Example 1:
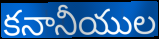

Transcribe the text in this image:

కనానీయుల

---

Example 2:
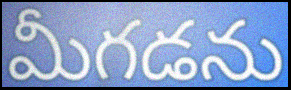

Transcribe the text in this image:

మీగడను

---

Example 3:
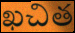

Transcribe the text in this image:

ఖచిత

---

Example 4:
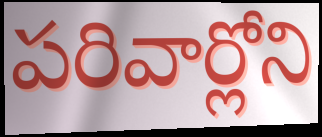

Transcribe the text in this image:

పరివార్లోని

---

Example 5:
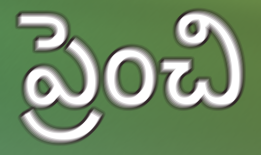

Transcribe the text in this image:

ప్రెంచి